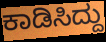
ಕಾಡಿಸಿದ್ದು